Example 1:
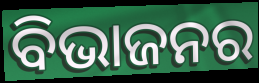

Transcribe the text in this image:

ବିଭାଜନର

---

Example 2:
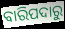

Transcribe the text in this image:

ବାରିପଦାରୁ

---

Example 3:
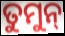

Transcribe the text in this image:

ତୁମୁନ୍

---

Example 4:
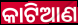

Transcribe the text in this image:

କାଟିଆଣ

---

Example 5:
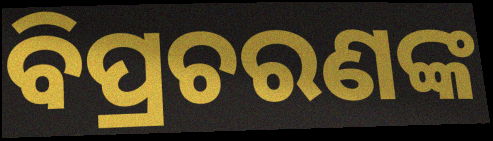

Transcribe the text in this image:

ବିପ୍ରଚରଣଙ୍କ